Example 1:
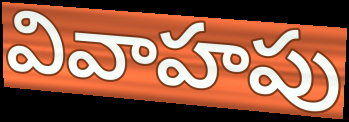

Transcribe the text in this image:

వివాహపు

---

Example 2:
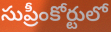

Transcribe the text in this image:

సుప్రీంకోర్టులో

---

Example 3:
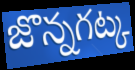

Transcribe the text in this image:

జొన్నగట్క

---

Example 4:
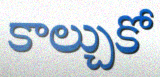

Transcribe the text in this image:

కాల్చుకో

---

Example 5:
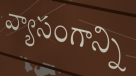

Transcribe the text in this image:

వ్యాసంగాన్ని